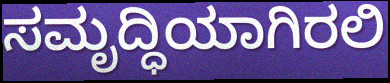
ಸಮೃದ್ಧಿಯಾಗಿರಲಿ